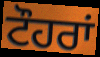
ਟੌਹਰਾਂ